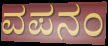
ವಪನಂ